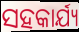
ସହକାର୍ଯ୍ୟ